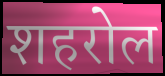
शहरोल